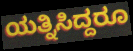
ಯತ್ನಿಸಿದ್ದರೂ